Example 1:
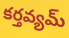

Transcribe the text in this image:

కర్తవ్యమ్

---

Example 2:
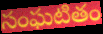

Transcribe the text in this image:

సంఘటితం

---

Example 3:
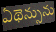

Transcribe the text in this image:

ఏథెన్సును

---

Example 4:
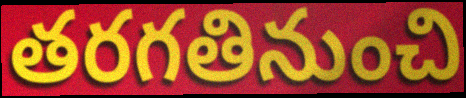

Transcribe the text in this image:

తరగతినుంచి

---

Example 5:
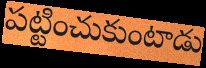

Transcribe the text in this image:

పట్టించుకుంటాడు